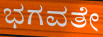
ಭಗವತೇ